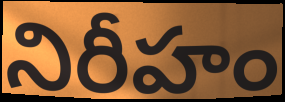
నిరీహం